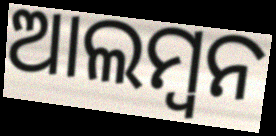
ଆଲମ୍ୱନ